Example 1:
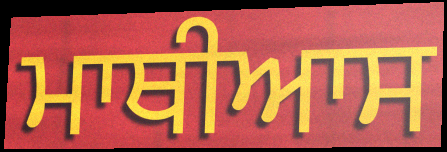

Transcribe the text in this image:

ਮਾਥੀਆਸ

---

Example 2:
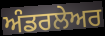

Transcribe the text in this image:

ਅੰਡਰਲੇਅਰ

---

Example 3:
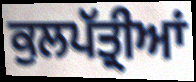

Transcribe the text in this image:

ਕੁਲਪੱਤ੍ਰੀਆਂ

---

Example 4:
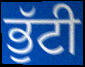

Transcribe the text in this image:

ਭੁੱਟੀ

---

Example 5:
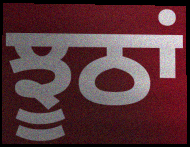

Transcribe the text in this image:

ਝੂਠਾਂ